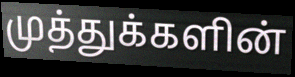
முத்துக்களின்